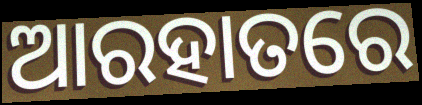
ଆରହାତରେ